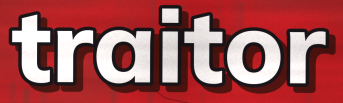
traitor